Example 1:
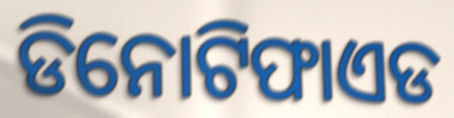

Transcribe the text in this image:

ଡିନୋଟିଫାଏଡ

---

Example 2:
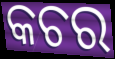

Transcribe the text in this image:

କଚର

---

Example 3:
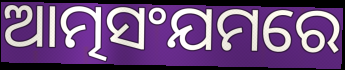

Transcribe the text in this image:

ଆତ୍ମସଂଯମରେ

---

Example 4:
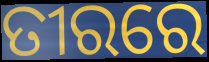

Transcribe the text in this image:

ତୀରରେ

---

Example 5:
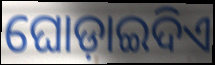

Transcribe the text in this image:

ଘୋଡ଼ାଇଦିଏ